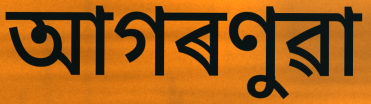
আগৰণুৱা